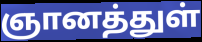
ஞானத்துள்